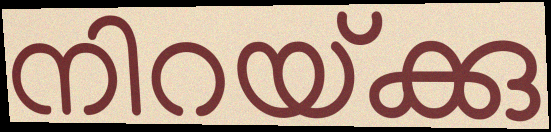
നിറയ്‌ക്കു